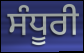
ਸੰਧੂਰੀ